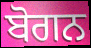
ਬੋਗਨ